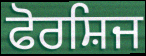
ਫੋਰਸ਼ਿਜ